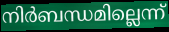
നിർബന്ധമില്ലെന്ന്